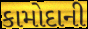
કામોદાની